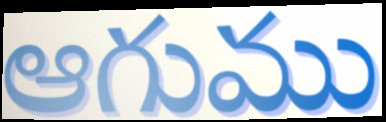
ఆగుము